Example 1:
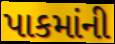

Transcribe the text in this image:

પાકમાંની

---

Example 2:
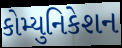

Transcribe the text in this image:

કોમ્યુનિકેશન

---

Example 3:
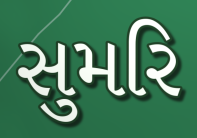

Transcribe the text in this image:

સુમરિ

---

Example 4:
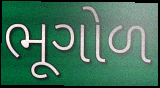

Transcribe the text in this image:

ભૂગોળ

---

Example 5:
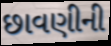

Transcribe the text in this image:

છાવણીની